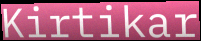
Kirtikar